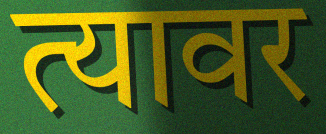
त्‍यावर